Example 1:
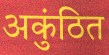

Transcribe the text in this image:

अकुंठित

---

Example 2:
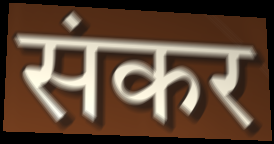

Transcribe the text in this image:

संकर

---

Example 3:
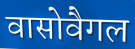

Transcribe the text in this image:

वासोवैगल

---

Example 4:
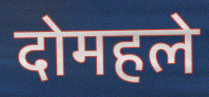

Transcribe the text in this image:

दोमहले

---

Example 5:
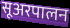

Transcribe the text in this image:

सूअरपालन